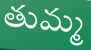
తుమ్మ